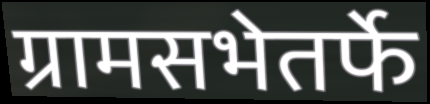
ग्रामसभेतर्फे